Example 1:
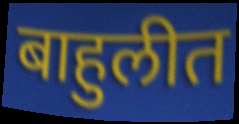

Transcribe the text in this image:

बाहुलीत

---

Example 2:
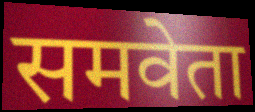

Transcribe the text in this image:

समवेता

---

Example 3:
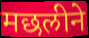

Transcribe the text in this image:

मछलीने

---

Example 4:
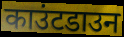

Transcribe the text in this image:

काउंटडाउन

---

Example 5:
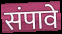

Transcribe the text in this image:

संपावे